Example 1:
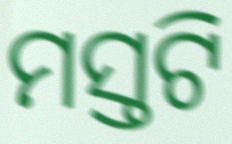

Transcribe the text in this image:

ମସ୍ତଟି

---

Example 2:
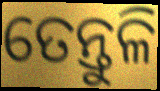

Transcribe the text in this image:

ତେନ୍ତୁଳି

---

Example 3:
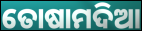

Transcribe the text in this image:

ତୋଷାମଦିଆ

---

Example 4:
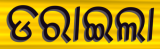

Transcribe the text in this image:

ଡରାଇଲା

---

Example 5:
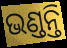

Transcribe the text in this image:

ଭଣ୍ଡନ୍ତି